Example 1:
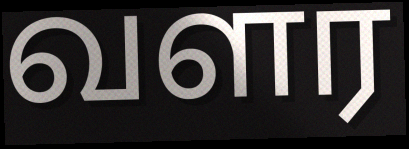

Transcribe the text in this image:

வளர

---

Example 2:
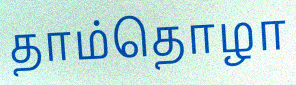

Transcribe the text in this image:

தாம்தொழா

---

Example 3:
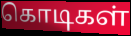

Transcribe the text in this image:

கொடிகள்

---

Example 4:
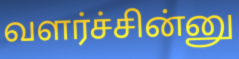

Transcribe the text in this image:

வளர்ச்சின்னு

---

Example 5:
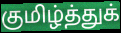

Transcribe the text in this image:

குமிழ்த்துக்